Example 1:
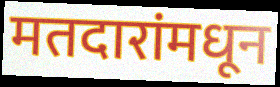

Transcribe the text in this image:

मतदारांमधून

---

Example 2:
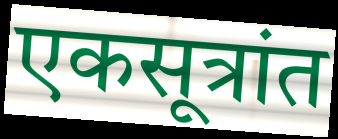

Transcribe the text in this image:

एकसूत्रांत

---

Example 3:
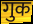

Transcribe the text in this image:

गुक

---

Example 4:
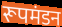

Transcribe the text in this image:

रूपमंडन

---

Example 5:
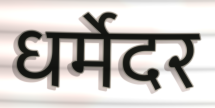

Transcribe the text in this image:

धर्मेदर